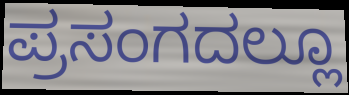
ಪ್ರಸಂಗದಲ್ಲೂ